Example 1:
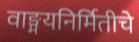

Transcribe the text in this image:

वाङ्मयनिर्मितीचे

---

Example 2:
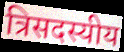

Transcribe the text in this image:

त्रिसदस्यीय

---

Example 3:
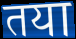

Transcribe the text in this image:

तया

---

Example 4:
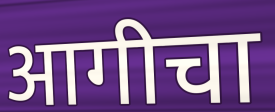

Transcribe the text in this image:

आगीचा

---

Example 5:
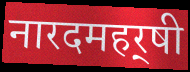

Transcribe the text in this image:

नारदमहर्षी